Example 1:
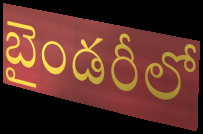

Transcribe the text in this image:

బైండరీలో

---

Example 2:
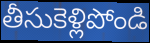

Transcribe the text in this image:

తీసుకెళ్లిపోండి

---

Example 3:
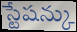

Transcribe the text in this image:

స్టేషన్కు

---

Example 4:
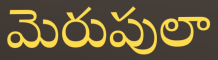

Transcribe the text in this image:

మెరుపులా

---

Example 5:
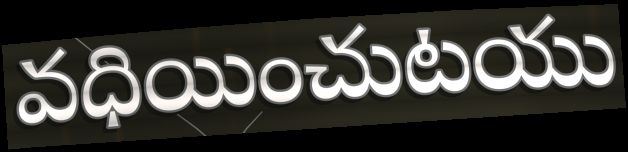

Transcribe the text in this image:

వధియించుటయు